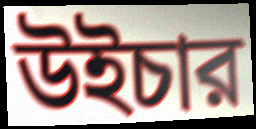
উইচার